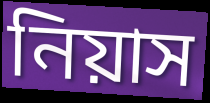
নিয়াস